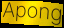
Apong